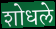
शोधले